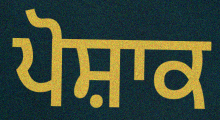
ਪੋਸ਼ਾਕ